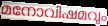
മനോവിഷമവും